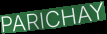
PARICHAY